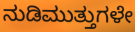
ನುಡಿಮುತ್ತುಗಳೇ